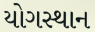
યોગસ્થાન